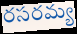
రసరమ్య